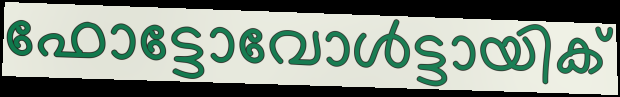
ഫോട്ടോവോൾട്ടായിക്